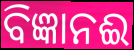
ବିଜ୍ଞାନଈ